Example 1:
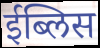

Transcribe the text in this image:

ईब्लिस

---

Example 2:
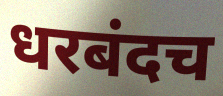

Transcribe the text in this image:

धरबंदच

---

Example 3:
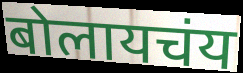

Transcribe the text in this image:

बोलायचंय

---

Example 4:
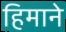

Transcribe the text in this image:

हिमाने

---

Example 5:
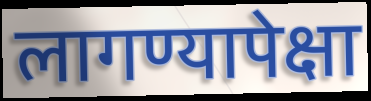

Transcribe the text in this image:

लागण्यापेक्षा